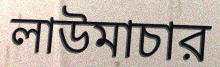
লাউমাচার